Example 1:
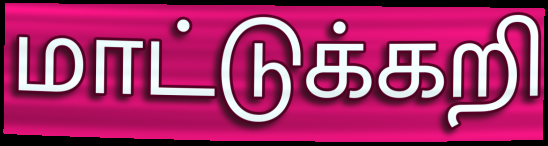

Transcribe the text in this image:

மாட்டுக்கறி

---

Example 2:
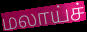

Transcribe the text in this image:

மலாய்ச்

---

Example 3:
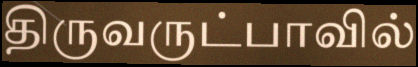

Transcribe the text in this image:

திருவருட்பாவில்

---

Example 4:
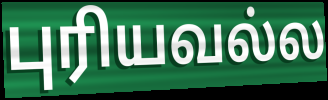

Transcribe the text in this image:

புரியவல்ல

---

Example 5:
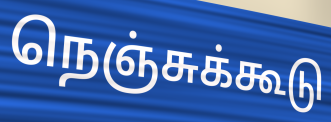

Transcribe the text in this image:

நெஞ்சுக்கூடு